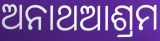
ଅନାଥଆଶ୍ରମ